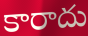
కారాదు